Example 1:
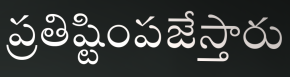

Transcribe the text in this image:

ప్రతిష్టింపజేస్తారు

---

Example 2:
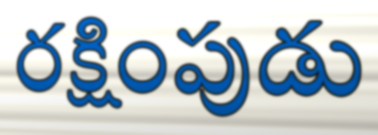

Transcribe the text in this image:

రక్షింపుడు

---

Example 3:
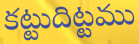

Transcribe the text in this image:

కట్టుదిట్టము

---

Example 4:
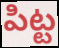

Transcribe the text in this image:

పిట్ట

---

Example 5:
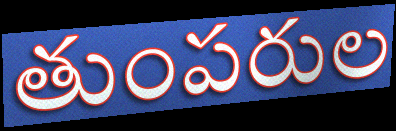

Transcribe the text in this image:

తుంపరుల